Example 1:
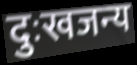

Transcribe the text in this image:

दुःखजन्य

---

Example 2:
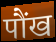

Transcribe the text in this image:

पौंख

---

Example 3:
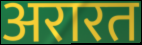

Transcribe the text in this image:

अरारत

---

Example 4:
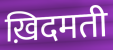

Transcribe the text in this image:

ख़िदमती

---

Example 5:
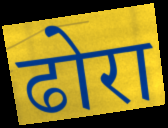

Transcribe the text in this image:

ढोरा